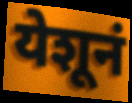
येशूनं